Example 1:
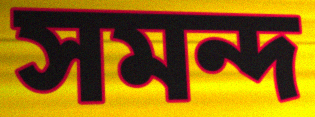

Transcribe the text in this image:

সমন্দ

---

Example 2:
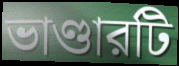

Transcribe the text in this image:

ভাণ্ডারটি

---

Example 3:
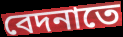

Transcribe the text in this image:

বেদনাতে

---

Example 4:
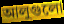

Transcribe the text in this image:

আলুগুলো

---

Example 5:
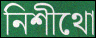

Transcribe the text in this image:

নিশীথো